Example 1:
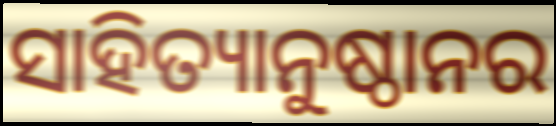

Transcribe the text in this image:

ସାହିତ୍ୟାନୁଷ୍ଠାନର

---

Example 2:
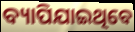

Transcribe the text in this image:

ବ୍ୟାପିଯାଇଥିବେ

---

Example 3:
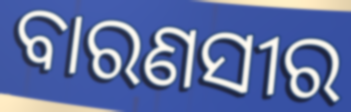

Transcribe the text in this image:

ବାରଣସୀର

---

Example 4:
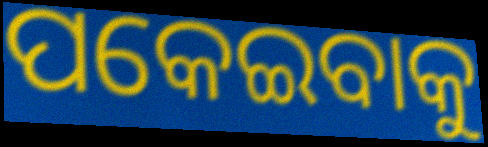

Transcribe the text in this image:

ପକେଇବାକୁ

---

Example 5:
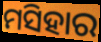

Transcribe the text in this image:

ମସିହାର